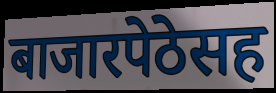
बाजारपेठेसह